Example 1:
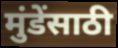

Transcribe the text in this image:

मुंडेंसाठी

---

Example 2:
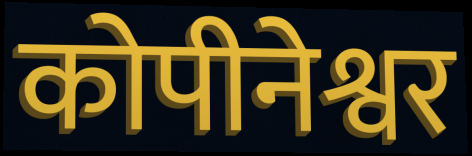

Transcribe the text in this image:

कोपीनेश्वर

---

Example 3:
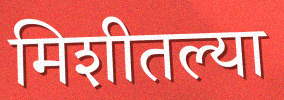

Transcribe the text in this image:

मिशीतल्या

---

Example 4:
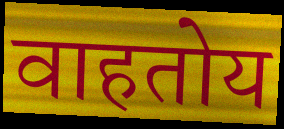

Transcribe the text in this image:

वाहतोय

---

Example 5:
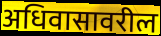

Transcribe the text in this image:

अधिवासावरील